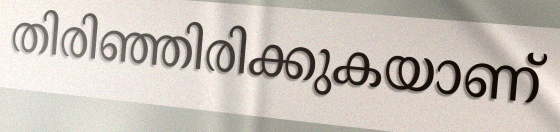
തിരിഞ്ഞിരിക്കുകയാണ്